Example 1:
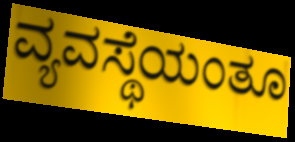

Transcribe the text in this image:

ವ್ಯವಸ್ಥೆಯಂತೂ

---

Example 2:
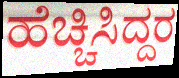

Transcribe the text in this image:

ಹೆಚ್ಚಿಸಿದ್ದರ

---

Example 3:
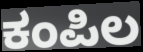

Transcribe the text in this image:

ಕಂಪಿಲ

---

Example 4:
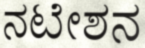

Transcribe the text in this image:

ನಟೇಶನ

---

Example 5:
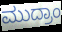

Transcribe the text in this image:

ಮುದ್ರಾಂ